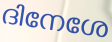
ദിനേശേ